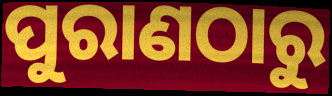
ପୁରାଣଠାରୁ